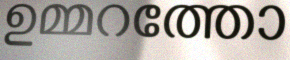
ഉമ്മറത്തോ